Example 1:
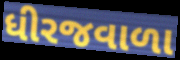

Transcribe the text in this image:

ધીરજવાળા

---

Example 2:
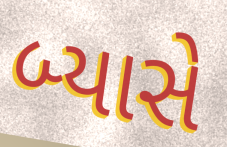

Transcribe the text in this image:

બ્યાસે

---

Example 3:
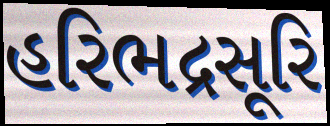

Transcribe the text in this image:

હરિભદ્રસૂરિ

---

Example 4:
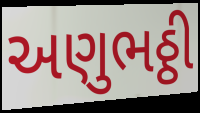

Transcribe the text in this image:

અણુભઠ્ઠી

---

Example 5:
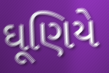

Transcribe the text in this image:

ઘૂણિયે